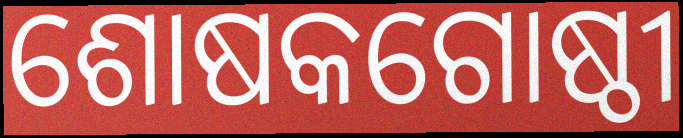
ଶୋଷକଗୋଷ୍ଠୀ